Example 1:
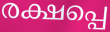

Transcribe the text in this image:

രക്ഷപ്പെ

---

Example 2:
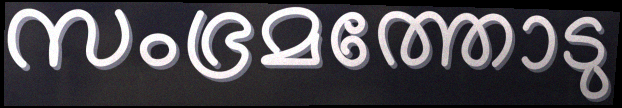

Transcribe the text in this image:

സംഭ്രമത്തോടു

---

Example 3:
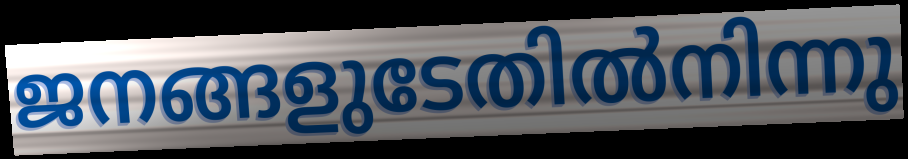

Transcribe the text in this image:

ജനങ്ങളുടേതിൽനിന്നു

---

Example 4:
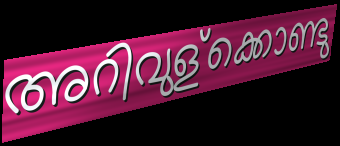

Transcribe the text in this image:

അറിവുള്ക്കൊണ്ടു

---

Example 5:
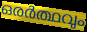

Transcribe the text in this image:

ഒരർത്ഥവും